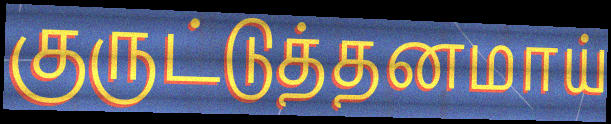
குருட்டுத்தனமாய்